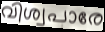
വിശ്വപാരേ